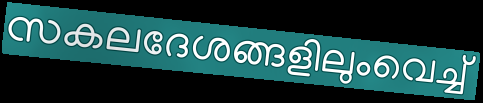
സകലദേശങ്ങളിലുംവെച്ച്